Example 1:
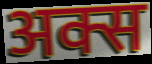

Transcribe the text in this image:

अक्स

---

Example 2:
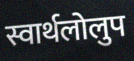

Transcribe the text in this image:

स्वार्थलोलुप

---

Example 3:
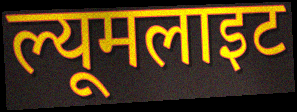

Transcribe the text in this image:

ल्यूमलाइट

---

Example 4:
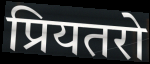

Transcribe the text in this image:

प्रियतरो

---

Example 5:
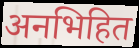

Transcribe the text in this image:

अनभिहित